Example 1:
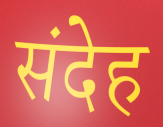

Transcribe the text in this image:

संदेह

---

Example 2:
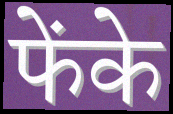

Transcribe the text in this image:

फेंके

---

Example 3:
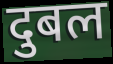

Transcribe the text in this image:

दुबल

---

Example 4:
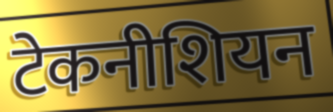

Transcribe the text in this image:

टेकनीशियन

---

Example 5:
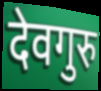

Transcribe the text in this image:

देवगुरु